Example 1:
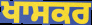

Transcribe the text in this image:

ਖਾਸਕਰ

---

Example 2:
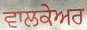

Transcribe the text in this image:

ਵਾਲਕੇਅਰ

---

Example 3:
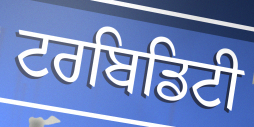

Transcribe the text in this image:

ਟਰਬਿਡਿਟੀ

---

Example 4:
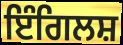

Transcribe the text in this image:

ਇੰਗਿਲਸ਼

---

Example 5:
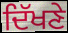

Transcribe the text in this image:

ਦਿੱਖਣੇ